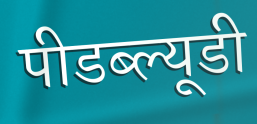
पीडब्ल्यूडी